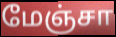
மேஞ்சா